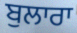
ਬੁਲਾਰਾ